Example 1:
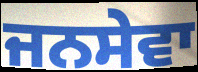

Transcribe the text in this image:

ਜਨਸੇਵਾ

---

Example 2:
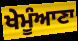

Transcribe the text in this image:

ਖੇਮੂੰਆਣਾ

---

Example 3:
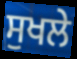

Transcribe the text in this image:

ਸੁਖਲੇ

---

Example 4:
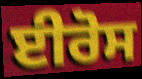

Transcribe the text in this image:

ਈਰੋਸ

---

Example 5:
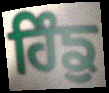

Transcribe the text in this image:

ਹਿੰਙੁ